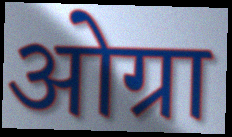
ओग्रा